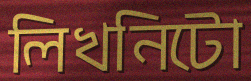
লিখনিটো